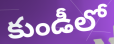
కుండీలో